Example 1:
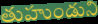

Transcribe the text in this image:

తుహుండుని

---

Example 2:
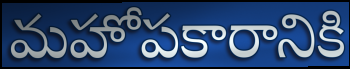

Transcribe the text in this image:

మహోపకారానికి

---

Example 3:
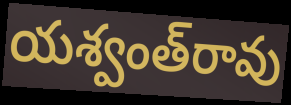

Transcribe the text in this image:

యశ్వంత్‌రావు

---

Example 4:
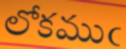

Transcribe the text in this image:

లోకముఁ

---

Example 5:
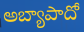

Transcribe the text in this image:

అబ్యాపాదో